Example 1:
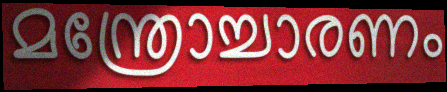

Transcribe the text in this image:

മന്ത്രോച്ചാരണം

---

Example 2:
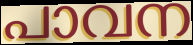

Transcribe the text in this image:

പാവന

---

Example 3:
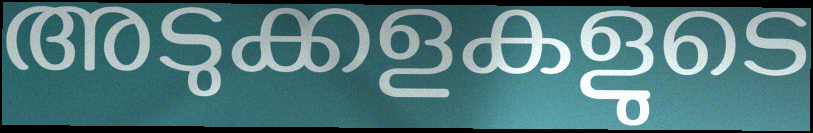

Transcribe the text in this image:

അടുക്കളകളുടെ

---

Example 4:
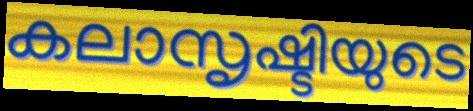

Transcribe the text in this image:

കലാസൃഷ്ടിയുടെ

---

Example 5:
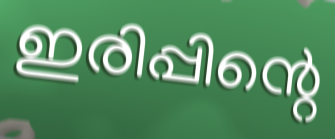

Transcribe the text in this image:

ഇരിപ്പിന്റെ